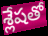
శ్లేషతో